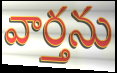
వార్తను